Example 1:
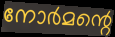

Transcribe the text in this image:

നോർമന്റെ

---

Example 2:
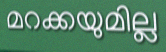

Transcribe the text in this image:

മറക്കയുമില്ല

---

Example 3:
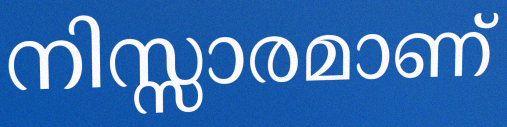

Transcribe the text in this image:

നിസ്സാരമാണ്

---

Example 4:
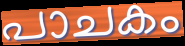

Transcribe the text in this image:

പാചകം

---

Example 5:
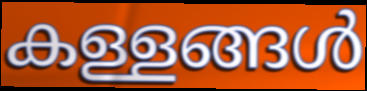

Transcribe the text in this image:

കള്ളങ്ങൾ